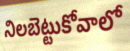
నిలబెట్టుకోవాలో